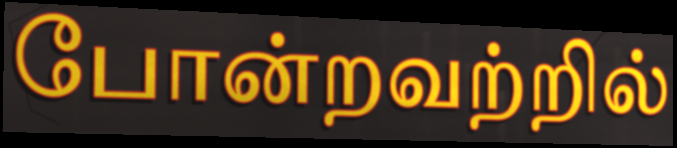
போன்றவற்றில்